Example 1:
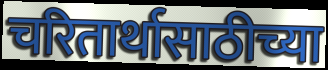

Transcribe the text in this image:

चरितार्थासाठीच्या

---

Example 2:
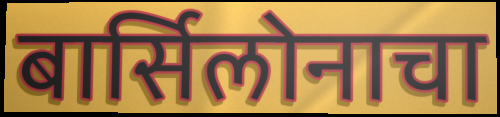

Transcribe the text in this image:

बार्सिलोनाचा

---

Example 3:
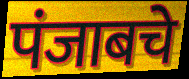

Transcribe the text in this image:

पंजाबचे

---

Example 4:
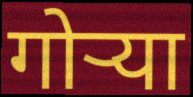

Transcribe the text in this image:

गोऱ्या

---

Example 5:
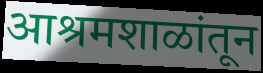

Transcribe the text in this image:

आश्रमशाळांतून